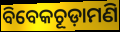
ବିବେକଚୂଡ଼ାମଣି